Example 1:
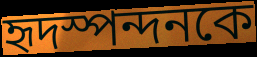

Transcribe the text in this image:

হৃদস্পন্দনকে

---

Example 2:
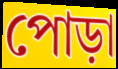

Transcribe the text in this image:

পোড়া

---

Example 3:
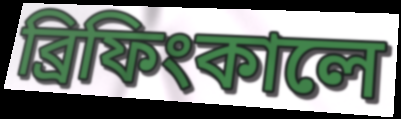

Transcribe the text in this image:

ব্রিফিংকালে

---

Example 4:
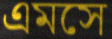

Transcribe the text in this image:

এমসে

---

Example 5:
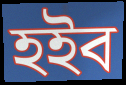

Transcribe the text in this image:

হইব